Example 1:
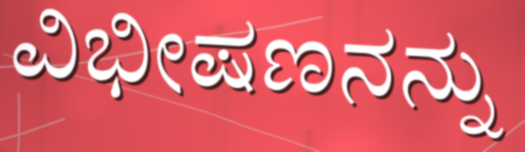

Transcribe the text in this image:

ವಿಭೀಷಣನನ್ನು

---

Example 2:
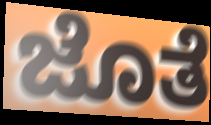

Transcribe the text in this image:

ಜೊತೆ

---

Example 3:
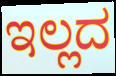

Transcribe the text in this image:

ಇಲ್ಲದ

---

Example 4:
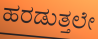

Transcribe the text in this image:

ಹರಡುತ್ತಲೇ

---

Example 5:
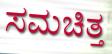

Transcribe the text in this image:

ಸಮಚಿತ್ತ